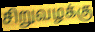
சிறுவழக்கு